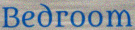
Bedroom